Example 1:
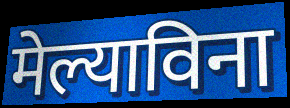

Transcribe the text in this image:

मेल्याविना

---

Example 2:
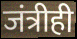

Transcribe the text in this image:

जंत्रीही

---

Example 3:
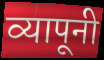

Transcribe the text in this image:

व्यापूनी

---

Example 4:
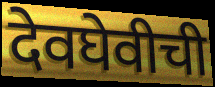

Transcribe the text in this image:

देवघेवीची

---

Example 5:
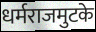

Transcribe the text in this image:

धर्मराजमुटके